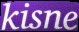
kisne